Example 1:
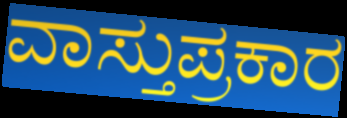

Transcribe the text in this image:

ವಾಸ್ತುಪ್ರಕಾರ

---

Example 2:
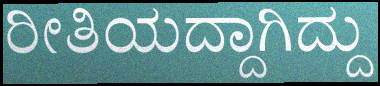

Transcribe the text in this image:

ರೀತಿಯದ್ದಾಗಿದ್ದು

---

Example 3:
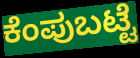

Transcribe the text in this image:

ಕೆಂಪುಬಟ್ಟೆ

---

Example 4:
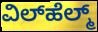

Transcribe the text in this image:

ವಿಲ್‌ಹೆಲ್ಮ್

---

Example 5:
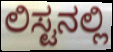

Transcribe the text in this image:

ಲಿಸ್ಟನಲ್ಲಿ